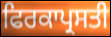
ਫਿਰਕਾਪ੍ਰਸਤੀ